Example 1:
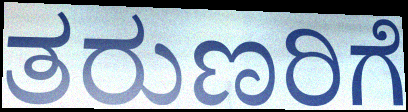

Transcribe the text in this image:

ತರುಣರಿಗೆ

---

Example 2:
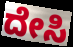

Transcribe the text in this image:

ದೇಸಿ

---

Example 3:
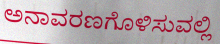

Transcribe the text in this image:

ಅನಾವರಣಗೊಳಿಸುವಲ್ಲಿ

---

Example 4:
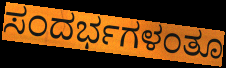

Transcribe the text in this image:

ಸಂದರ್ಭಗಳಂತೂ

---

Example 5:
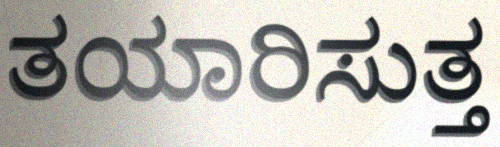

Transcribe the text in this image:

ತಯಾರಿಸುತ್ತ